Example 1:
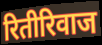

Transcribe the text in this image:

रितीरिवाज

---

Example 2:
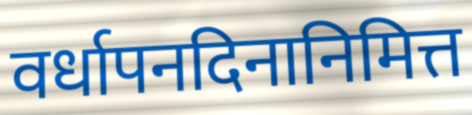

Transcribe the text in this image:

वर्धापनदिनानिमित्त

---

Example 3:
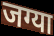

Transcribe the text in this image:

जग्या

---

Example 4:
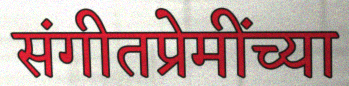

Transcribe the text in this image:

संगीतप्रेमींच्या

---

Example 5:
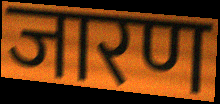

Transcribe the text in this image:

जारण